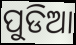
ପୁଡିଆ